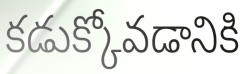
కడుక్కోవడానికి